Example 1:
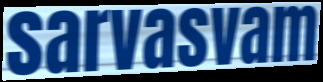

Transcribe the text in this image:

sarvasvam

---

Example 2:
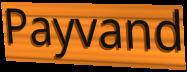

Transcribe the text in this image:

Payvand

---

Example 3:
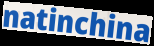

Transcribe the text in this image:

natinchina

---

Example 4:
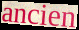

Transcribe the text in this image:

ancien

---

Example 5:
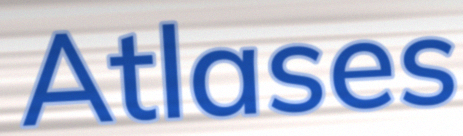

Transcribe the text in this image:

Atlases